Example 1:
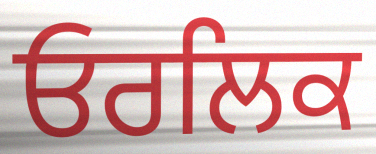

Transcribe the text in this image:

ਓਰਲਿਕ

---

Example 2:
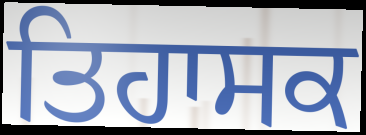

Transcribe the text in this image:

ਤਿਹਾਸਕ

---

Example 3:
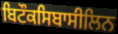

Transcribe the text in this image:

ਬਿਟੌਕਸਿਬਾਸੀਲਿਨ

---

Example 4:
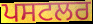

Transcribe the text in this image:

ਪਸਟਲਰ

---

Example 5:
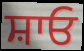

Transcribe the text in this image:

ਸ਼ਾਓ